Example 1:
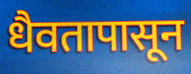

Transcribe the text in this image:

धैवतापासून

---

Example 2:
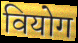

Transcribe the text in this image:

वियोग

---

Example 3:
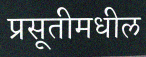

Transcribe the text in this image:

प्रसूतीमधील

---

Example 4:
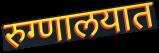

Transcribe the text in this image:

रुग्णालयात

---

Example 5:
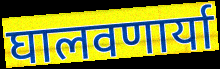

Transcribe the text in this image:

घालवणार्या